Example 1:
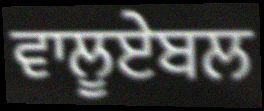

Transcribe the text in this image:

ਵਾਲੂਏਬਲ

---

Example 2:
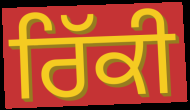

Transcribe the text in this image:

ਰਿੱਕੀ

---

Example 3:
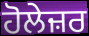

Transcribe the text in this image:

ਹੋਲੇਜ਼ਰ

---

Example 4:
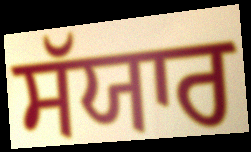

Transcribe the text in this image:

ਸੱਯਾਰ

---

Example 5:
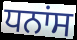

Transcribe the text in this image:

ਧਨਾਂਸ